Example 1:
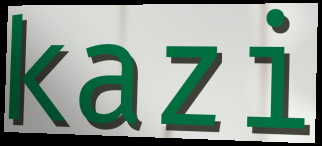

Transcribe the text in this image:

kazi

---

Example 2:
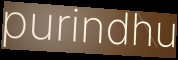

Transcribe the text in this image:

purindhu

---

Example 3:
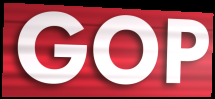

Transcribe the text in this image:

GOP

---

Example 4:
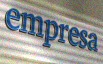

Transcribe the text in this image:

empresa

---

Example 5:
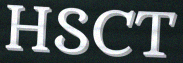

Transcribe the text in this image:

HSCT